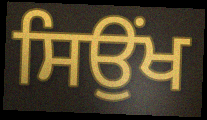
ਸਿਉਂਖ